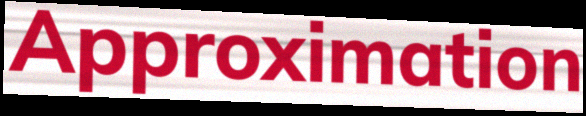
Approximation